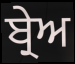
ਬ੍ਰੇਅ